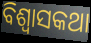
ବିଶ୍ଵାସକଥା